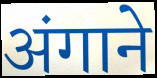
अंगाने